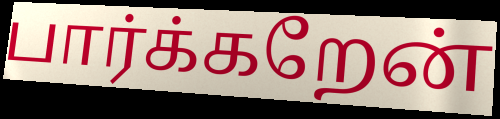
பார்க்கறேன்